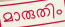
മാരുതിം